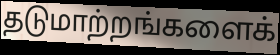
தடுமாற்றங்களைக்